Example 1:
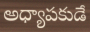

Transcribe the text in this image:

అధ్యాపకుడే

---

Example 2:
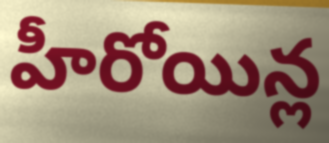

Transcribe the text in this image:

హీరోయిన్ల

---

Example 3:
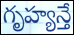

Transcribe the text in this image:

గృహ్యన్తే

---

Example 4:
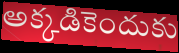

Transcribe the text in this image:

అక్కడికెందుకు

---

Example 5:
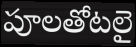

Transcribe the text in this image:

పూలతోటలై